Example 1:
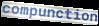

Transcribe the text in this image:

compunction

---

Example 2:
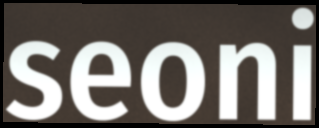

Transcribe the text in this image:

seoni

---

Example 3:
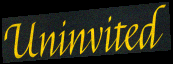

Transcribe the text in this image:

Uninvited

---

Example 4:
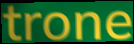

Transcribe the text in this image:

trone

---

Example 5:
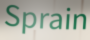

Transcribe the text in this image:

Sprain